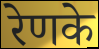
रेणके